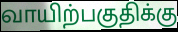
வாயிற்பகுதிக்கு